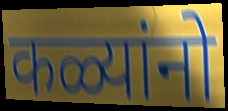
कळ्यांनो